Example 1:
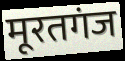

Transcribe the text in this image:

मूरतगंज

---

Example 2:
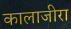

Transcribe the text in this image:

कालाजीरा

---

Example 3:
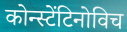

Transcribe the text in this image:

कोन्स्टेंटिनोविच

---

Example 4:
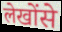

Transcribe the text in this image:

लेखोंसे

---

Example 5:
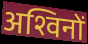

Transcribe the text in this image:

अश्विनों